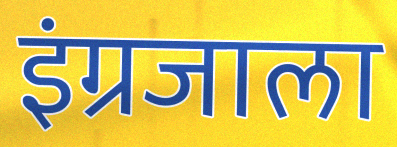
इंग्रजाला